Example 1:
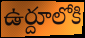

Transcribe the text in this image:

ఉర్దూలోకి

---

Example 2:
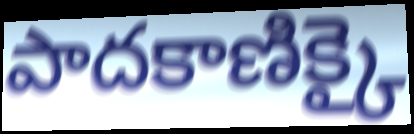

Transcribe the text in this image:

పాదకాణిక్కై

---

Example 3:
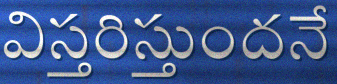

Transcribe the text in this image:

విస్తరిస్తుందనే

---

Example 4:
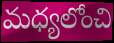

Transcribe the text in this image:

మధ్యలోంచి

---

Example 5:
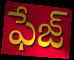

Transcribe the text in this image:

ఫేజ్